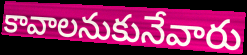
కావాలనుకునేవారు